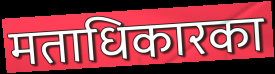
मताधिकारका